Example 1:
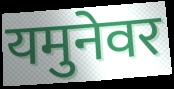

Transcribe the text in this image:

यमुनेवर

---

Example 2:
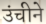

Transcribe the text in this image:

उंचीने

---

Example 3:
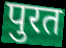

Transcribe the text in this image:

पुरत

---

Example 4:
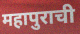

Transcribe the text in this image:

महापुराची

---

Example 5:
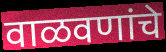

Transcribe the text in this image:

वाळवणांचे